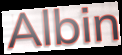
Albin